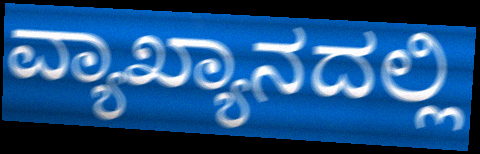
ವ್ಯಾಖ್ಯಾನದಲ್ಲಿ